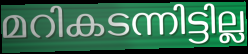
മറികടന്നിട്ടില്ല